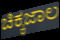
ಚಿಕ್ಕಜಾಲ